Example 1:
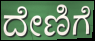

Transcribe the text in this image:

ದೇಣಿಗೆ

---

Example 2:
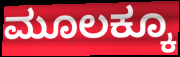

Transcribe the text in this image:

ಮೂಲಕ್ಕೂ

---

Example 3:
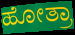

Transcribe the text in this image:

ಹೋತ್ರಾ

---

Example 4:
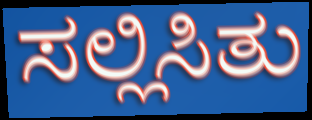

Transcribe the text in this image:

ಸಲ್ಲಿಸಿತು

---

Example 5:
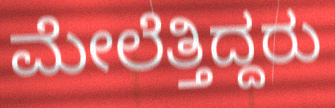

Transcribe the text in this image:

ಮೇಲೆತ್ತಿದ್ದರು